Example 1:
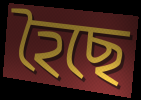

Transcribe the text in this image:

হৈছে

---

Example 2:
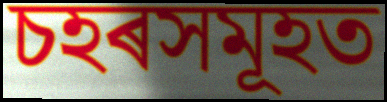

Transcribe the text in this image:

চহৰসমূহত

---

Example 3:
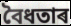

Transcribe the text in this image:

বৈধতাৰ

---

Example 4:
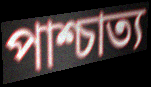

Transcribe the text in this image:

পাশ্চাত্য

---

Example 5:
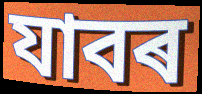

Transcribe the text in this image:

যাবৰ